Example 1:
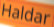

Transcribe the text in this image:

Haldar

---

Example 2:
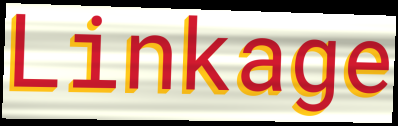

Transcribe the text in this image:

Linkage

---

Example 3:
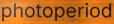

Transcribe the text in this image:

photoperiod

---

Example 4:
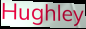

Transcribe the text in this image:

Hughley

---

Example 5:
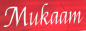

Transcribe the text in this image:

Mukaam